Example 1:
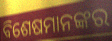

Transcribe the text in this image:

ବିଶେଷମାନଙ୍କର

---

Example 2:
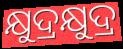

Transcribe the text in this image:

କ୍ଷୁଦ୍ରକ୍ଷୁଦ୍ର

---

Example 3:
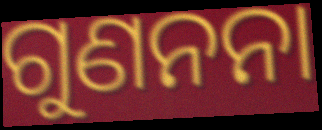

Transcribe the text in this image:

ଗୁଣନନା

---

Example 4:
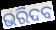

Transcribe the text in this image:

ଭରିଦବ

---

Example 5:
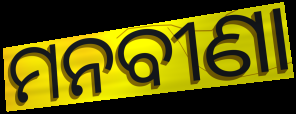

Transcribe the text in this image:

ମନବୀଣା